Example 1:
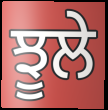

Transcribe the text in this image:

ਝੂਲੇ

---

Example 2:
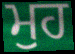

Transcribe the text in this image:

ਮੁਹ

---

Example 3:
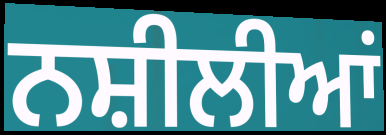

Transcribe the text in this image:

ਨਸ਼ੀਲੀਆਂ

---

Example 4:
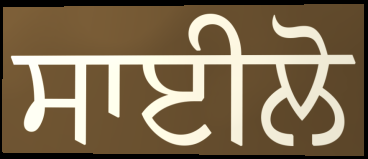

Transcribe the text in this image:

ਸਾਈਲੋ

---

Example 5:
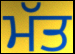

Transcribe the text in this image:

ਮੱਤ